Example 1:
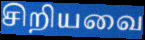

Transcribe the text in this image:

சிறியவை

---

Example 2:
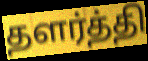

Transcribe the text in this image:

தளர்த்தி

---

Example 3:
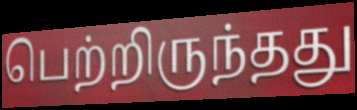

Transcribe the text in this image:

பெற்றிருந்தது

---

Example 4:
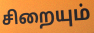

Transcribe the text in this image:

சிறையும்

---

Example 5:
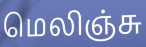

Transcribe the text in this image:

மெலிஞ்சு